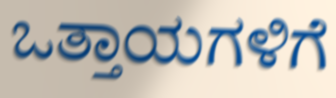
ಒತ್ತಾಯಗಳಿಗೆ